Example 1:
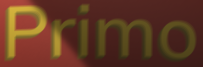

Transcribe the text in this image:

Primo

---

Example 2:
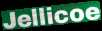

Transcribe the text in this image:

Jellicoe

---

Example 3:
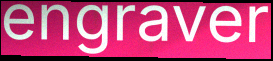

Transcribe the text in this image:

engraver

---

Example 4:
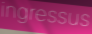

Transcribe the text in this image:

ingressus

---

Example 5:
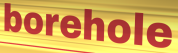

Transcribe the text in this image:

borehole